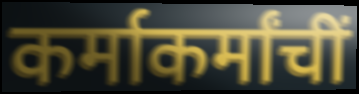
कर्माकर्मांचीं